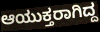
ಆಯುಕ್ತರಾಗಿದ್ದ